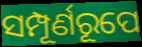
ସମ୍ପୂର୍ଣରୂପେ